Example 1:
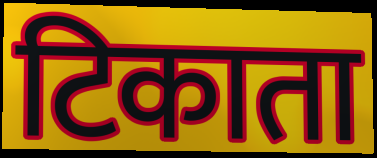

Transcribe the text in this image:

टिकाता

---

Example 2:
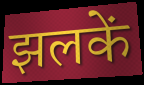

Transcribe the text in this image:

झलकें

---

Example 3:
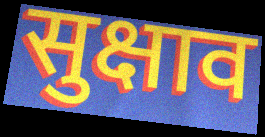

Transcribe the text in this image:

सुक्षाव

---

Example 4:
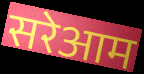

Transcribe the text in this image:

सरेआम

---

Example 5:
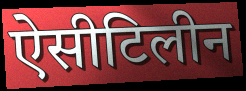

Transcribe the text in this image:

ऐसीटिलीन